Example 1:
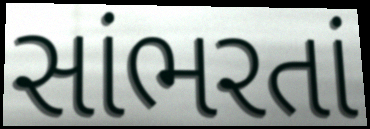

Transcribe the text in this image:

સાંભરતાં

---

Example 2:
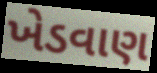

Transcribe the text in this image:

ખેડવાણ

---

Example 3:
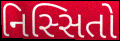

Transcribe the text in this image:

નિસ્સિતો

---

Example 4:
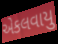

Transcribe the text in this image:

એકલવાયુ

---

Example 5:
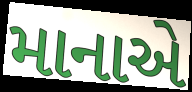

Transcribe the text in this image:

માનાએ